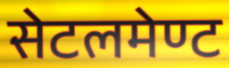
सेटलमेण्ट